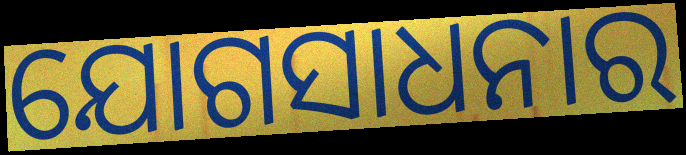
ଯୋଗସାଧନାର